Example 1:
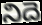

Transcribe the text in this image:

నిదె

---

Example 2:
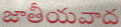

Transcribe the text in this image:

జాతీయవాద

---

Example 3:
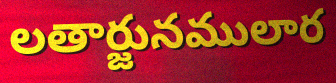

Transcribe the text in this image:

లతార్జునములార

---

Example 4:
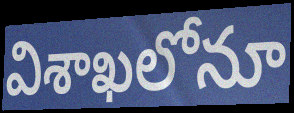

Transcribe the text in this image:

విశాఖలోనూ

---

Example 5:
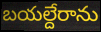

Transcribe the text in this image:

బయల్దేరాను